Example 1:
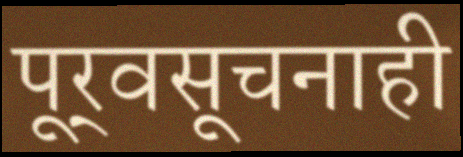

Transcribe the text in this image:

पूर्वसूचनाही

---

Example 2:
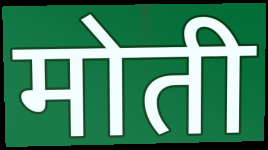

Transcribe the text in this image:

मोती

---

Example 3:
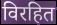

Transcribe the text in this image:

विरहित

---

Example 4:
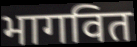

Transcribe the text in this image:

भागवित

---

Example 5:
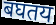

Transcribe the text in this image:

बघतय